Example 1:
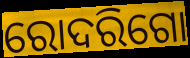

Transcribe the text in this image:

ରୋଦରିଗୋ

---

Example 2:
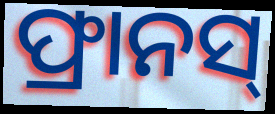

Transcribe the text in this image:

ଫ୍ରାନସ୍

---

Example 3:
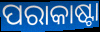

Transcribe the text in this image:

ପରାକାଷ୍ଟା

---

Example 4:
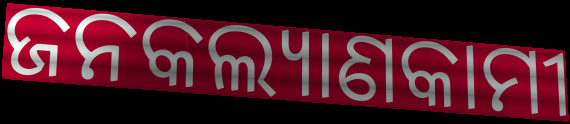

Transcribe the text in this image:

ଜନକଲ୍ୟାଣକାମୀ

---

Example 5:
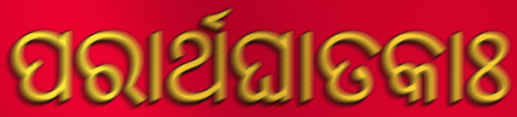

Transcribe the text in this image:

ପରାର୍ଥଘାତକାଃ